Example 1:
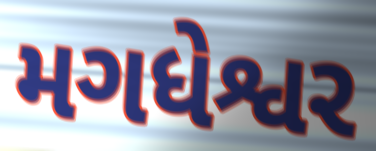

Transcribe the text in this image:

મગધેશ્વર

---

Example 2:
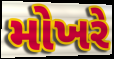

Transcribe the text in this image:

મોખરે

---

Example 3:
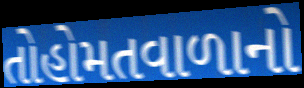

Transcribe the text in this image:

તોહોમતવાળાનો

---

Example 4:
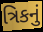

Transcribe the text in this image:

ત્રિકનું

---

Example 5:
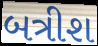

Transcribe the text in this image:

બત્રીશ